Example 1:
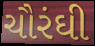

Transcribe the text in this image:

ચૌરંઘી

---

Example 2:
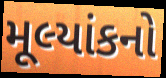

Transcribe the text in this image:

મૂલ્યાંકનો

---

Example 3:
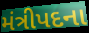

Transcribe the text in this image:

મંત્રીપદના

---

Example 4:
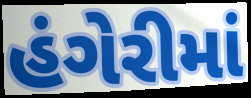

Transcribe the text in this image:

હંગેરીમાં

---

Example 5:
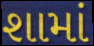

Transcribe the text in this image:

શામાં